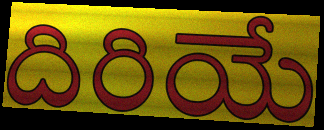
దిరియే